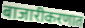
बाजारीकरणात